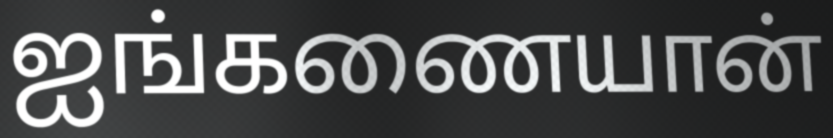
ஐங்கணையான்